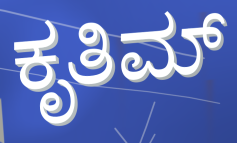
ಕೃತಿಮ್